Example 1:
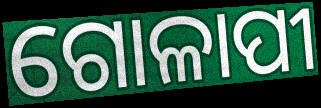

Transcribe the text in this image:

ଗୋଳାପୀ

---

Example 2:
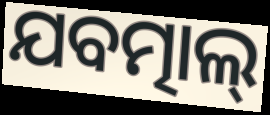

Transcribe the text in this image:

ଯବତ୍ମାଲ୍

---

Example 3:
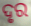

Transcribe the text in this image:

ଦୃର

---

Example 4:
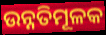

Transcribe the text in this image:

ଉନ୍ନତିମୂଳକ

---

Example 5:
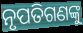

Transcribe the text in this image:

ନୃପତିଗଣଙ୍କୁ